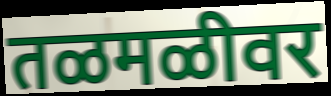
तळमळीवर